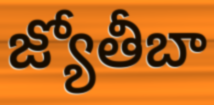
జ్యోతీబా